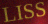
LISS